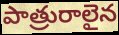
పాత్రురాలైన